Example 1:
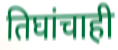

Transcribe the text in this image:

तिघांचाही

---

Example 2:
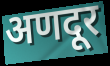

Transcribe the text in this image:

अणदूर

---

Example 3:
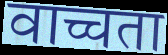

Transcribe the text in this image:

वाच्चता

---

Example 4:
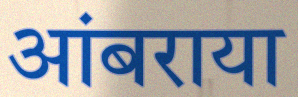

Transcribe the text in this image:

आंबराया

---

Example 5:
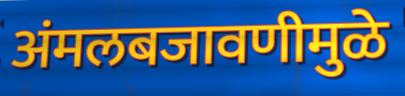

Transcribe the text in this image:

अंमलबजावणीमुळे